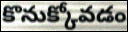
కొనుక్కోవడం